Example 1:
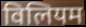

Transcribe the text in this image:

विलियम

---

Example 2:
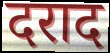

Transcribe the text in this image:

दराद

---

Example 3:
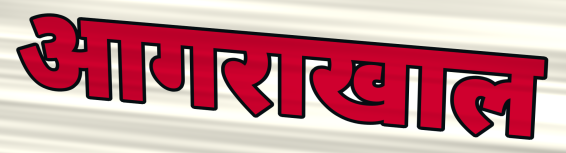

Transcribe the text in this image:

आगराखाल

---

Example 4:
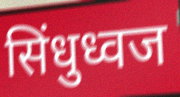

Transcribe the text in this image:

सिंधुध्वज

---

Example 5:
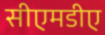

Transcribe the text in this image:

सीएमडीए